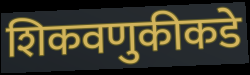
शिकवणुकीकडे